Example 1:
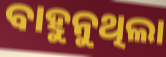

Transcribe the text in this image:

ବାହୁନୁଥିଲା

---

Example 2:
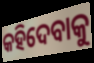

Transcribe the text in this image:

କହିଦେବାକୁ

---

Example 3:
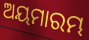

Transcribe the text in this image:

ଅୟମାରମ୍ଭ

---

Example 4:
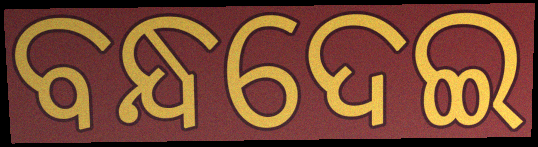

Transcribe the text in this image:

ବନ୍ଧଦେଇ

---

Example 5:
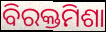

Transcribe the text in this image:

ବିରକ୍ତମିଶା